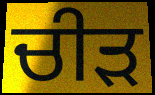
ਚੀੜ